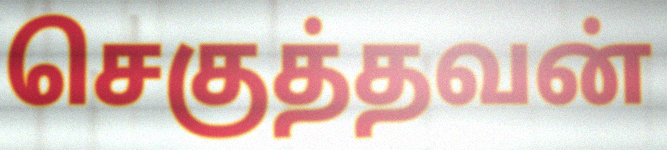
செகுத்தவன்